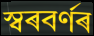
স্বৰবৰ্ণৰ